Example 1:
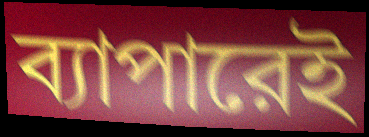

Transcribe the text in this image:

ব্যাপারেই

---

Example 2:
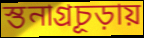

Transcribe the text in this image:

স্তনাগ্রচূড়ায়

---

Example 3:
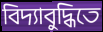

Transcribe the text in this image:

বিদ্যাবুদ্ধিতে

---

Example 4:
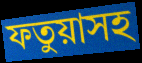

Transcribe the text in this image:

ফতুয়াসহ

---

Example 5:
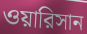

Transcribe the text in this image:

ওয়ারিসান